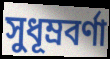
সুধূম্রবর্ণা